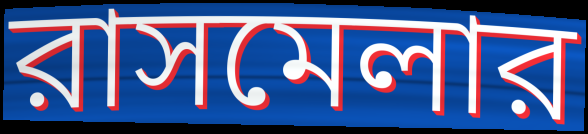
রাসমেলার